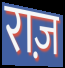
राज़